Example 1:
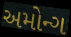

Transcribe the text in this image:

અમોન્ગ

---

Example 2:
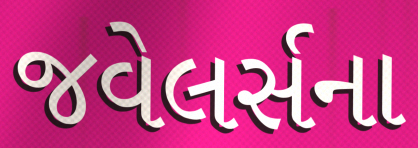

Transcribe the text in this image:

જવેલર્સના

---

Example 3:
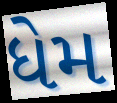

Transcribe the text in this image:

ધેમ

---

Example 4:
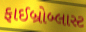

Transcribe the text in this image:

ફાઈબ્રોબ્લાસ્ટ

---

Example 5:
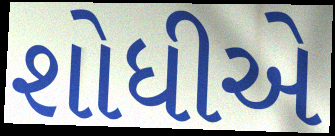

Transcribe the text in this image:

શોધીએ